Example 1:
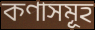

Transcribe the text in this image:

কণাসমূহ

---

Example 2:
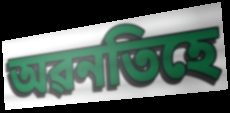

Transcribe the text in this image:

অৱনতিহে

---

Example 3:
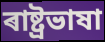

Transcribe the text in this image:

ৰাষ্ট্ৰভাষা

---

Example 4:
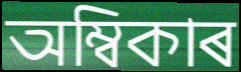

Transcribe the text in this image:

অম্বিকাৰ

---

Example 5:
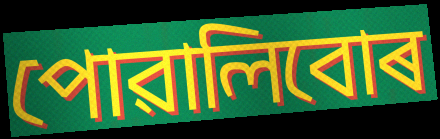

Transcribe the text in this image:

পোৱালিবোৰ